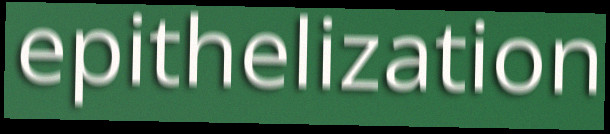
epithelization